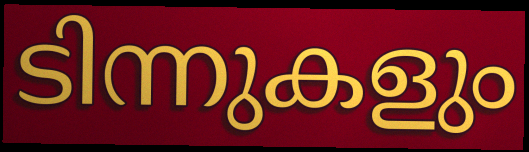
ടിന്നുകളും